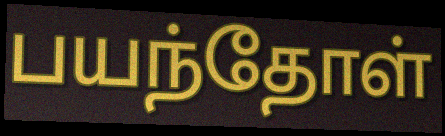
பயந்தோள்